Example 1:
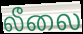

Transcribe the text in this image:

லீலை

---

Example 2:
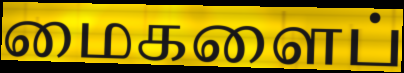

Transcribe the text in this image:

மைகளைப்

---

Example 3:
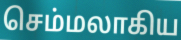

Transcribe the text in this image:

செம்மலாகிய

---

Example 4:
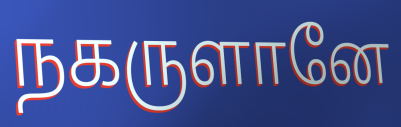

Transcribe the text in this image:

நகருளானே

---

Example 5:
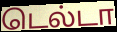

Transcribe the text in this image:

டெல்டா